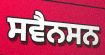
ਸਵੈਨਸਨ